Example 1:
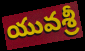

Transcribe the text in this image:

యువశ్రీ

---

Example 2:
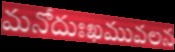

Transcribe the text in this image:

మనోదుఃఖమువలన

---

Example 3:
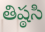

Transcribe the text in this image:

తిష్ఠసి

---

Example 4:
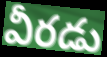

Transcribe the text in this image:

వీరడు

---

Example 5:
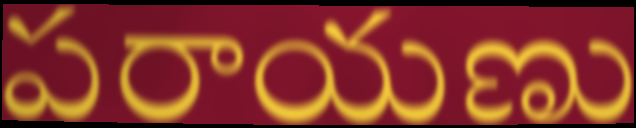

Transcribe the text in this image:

పరాయణు